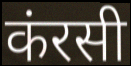
कंरसी